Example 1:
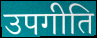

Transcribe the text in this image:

उपगीति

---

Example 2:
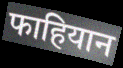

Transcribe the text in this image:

फाहियान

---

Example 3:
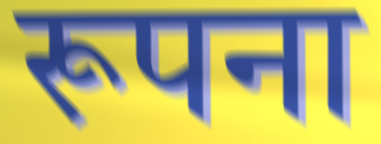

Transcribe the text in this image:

रूपना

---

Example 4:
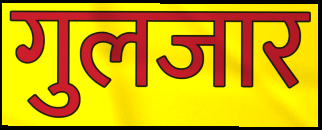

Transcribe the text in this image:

गुलजार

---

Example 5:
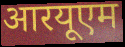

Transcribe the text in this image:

आरयूएम